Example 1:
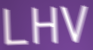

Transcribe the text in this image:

LHV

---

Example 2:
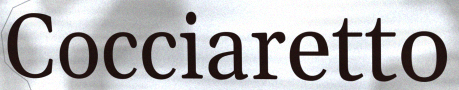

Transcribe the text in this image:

Cocciaretto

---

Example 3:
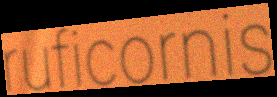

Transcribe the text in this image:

ruficornis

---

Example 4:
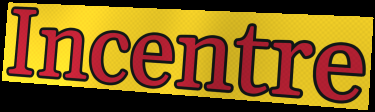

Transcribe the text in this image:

Incentre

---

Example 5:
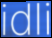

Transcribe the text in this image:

idli